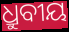
ଧ୍ରୁବୀୟ